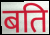
बति